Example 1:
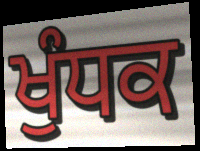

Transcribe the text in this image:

ਖੁੰਧਕ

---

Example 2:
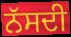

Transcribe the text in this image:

ਨੱਸਦੀ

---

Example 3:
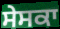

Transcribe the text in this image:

ਸੇਸਕਾ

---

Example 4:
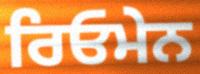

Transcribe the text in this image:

ਰਿਓਮੇਨ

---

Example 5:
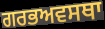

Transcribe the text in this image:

ਗਰਭਅਵਸਥਾ